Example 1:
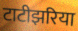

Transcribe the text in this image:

टाटीझरिया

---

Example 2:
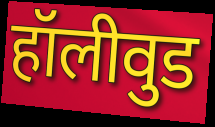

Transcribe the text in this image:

हॉलीवुड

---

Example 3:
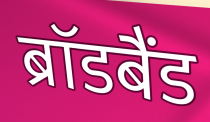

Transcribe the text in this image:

ब्रॉडबैंड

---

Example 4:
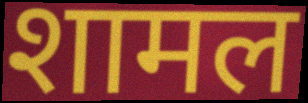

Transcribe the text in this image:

शामल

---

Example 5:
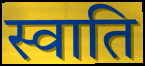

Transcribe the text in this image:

स्वाति